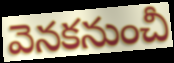
వెనకనుంచీ